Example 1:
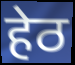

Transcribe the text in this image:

हेठ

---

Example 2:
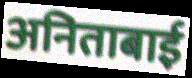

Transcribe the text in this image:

अनिताबाई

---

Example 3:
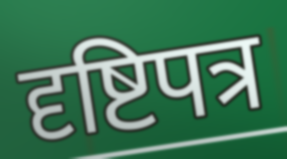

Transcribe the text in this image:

दृष्टिपत्र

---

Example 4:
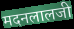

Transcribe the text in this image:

मदनलालजी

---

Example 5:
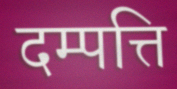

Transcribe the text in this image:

दम्पत्ति